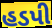
હડપી